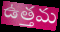
ఉత్తమ